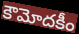
కౌమోదకీం